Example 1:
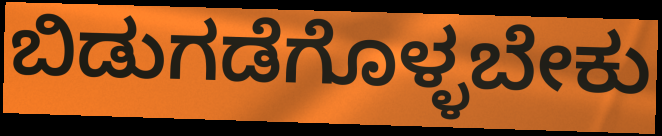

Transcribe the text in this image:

ಬಿಡುಗಡೆಗೊಳ್ಳಬೇಕು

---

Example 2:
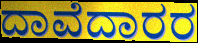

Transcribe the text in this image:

ದಾವೆದಾರರ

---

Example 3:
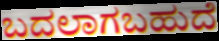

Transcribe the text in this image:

ಬದಲಾಗಬಹುದೆ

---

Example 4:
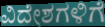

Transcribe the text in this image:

ವಿದೇಶಗಳಿಗೆ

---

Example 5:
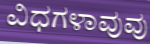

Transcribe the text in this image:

ವಿಧಗಳಾವುವು